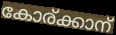
കോര്ക്കാന്